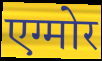
एग्मोर